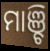
ମାଞ୍ଚି